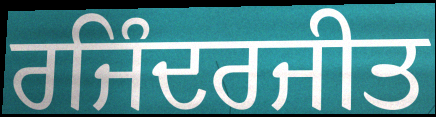
ਰਜਿੰਦਰਜੀਤ